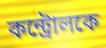
কন্ট্রোলকে